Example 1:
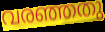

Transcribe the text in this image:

വരഞ്ഞതു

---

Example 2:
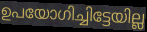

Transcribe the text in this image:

ഉപയോഗിച്ചിട്ടേയില്ല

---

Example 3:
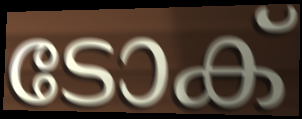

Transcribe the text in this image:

ടോക്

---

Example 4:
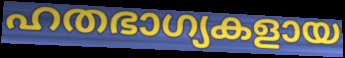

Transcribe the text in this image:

ഹതഭാഗ്യകളായ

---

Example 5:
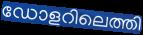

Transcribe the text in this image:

ഡോളറിലെത്തി